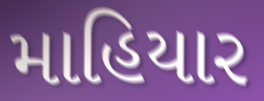
માહિયાર